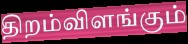
திறம்விளங்கும்